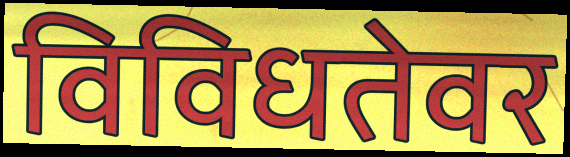
विविधतेवर